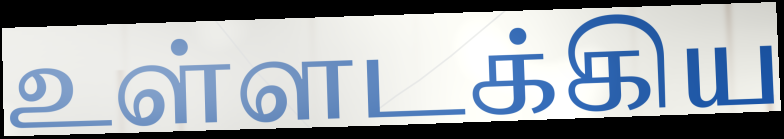
உள்ளடக்கிய